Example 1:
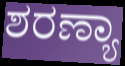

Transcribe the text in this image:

ಶರಣ್ಯಾ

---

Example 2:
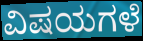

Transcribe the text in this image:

ವಿಷಯಗಳೆ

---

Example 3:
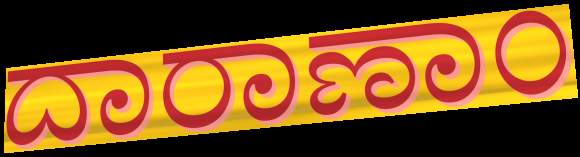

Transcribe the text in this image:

ದಾರಾಣಾಂ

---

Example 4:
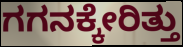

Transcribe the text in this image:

ಗಗನಕ್ಕೇರಿತ್ತು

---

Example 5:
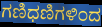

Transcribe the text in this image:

ಗಣಿಧಣಿಗಳಿಂದ